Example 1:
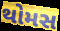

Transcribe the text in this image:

થોમસ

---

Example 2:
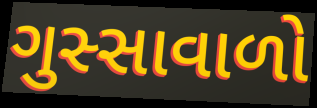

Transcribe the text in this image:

ગુસ્સાવાળો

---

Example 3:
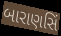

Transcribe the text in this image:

બારાણસિં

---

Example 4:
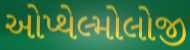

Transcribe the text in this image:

ઓપ્થેલ્મોલોજી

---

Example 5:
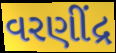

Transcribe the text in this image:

વરણીંદ્ર